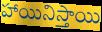
హాయినిస్తాయి